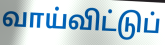
வாய்விட்டுப்